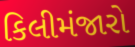
કિલીમંજારો